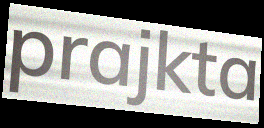
prajkta